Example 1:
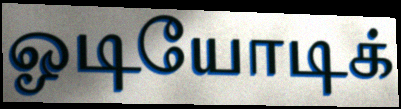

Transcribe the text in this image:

ஓடியோடிக்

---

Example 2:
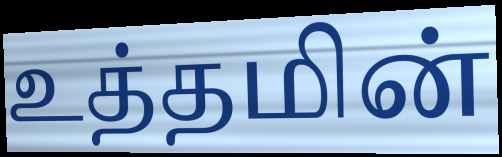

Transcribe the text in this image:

உத்தமின்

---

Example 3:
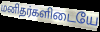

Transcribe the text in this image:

மனிதர்களிடையே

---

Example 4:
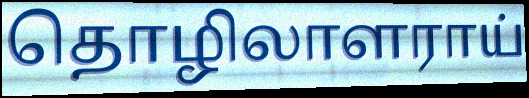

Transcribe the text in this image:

தொழிலாளராய்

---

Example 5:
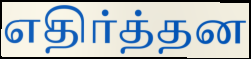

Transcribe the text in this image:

எதிர்த்தன